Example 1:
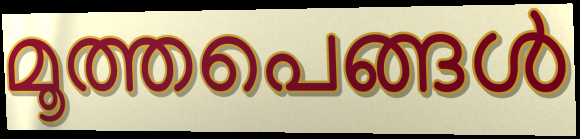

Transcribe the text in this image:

മൂത്തപെങ്ങൾ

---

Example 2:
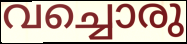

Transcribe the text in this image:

വച്ചൊരു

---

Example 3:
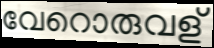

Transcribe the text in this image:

വേറൊരുവള്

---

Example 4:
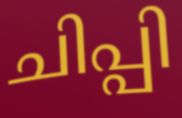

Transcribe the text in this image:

ചിപ്പി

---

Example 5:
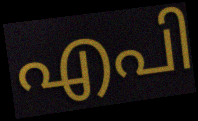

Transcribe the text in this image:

എപി